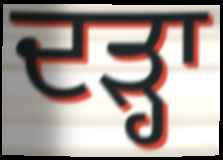
ਦੜ੍ਹਾ